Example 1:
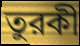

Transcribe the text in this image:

তুরকী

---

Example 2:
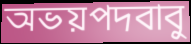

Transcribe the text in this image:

অভয়পদবাবু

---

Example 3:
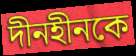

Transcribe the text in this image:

দীনহীনকে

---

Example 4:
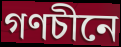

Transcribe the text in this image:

গণচীনে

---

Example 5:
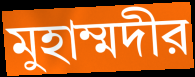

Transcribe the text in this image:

মুহাম্মদীর